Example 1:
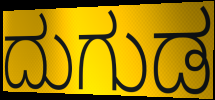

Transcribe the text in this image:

ದುಗುಡ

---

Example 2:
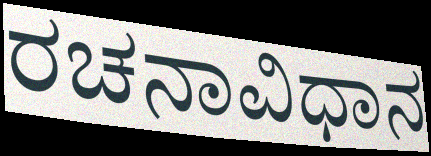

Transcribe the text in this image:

ರಚನಾವಿಧಾನ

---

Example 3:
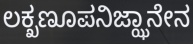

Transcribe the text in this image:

ಲಕ್ಖಣೂಪನಿಜ್ಝಾನೇನ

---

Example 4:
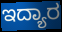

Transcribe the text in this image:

ಇದ್ಯಾರ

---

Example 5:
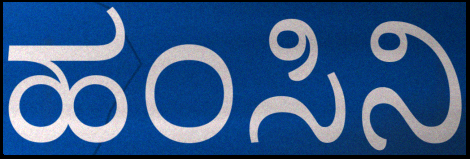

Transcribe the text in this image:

ಹಂಸಿನಿ